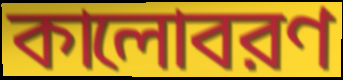
কালোবরণ